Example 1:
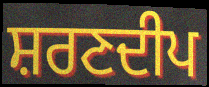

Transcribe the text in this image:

ਸ਼ਰਣਦੀਪ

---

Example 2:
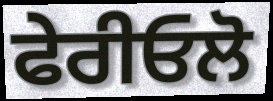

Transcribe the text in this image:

ਫੇਰੀਓਲੋ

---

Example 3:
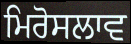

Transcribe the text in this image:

ਮਿਰੋਸਲਾਵ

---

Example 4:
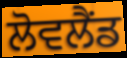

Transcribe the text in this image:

ਲੋਵਲੈਂਡ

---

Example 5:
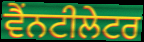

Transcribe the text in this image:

ਵੈਂਨਟੀਲੇਟਰ